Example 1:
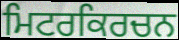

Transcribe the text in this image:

ਮਿਟਰਕਿਰਚਨ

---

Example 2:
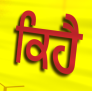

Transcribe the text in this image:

ਕਿਹੈ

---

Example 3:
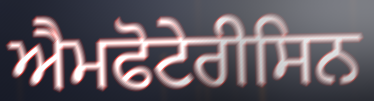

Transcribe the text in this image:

ਐਮਫੋਟੇਰੀਸਿਨ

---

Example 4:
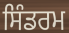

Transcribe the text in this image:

ਸਿੰਡਰਮ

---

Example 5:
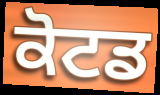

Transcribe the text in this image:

ਕੋਟਡ